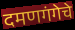
दमणगंगेचे